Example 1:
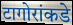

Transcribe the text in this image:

टागोरांकडे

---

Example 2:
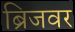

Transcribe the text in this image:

ब्रिजवर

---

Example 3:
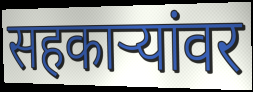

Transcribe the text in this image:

सहकार्‍यांवर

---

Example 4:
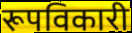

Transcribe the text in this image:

रूपविकारी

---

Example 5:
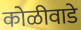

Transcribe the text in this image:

कोळीवाडे